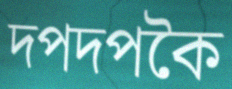
দপদপকৈ